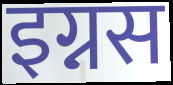
इग्नस